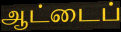
ஆட்டைப்